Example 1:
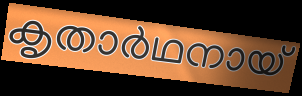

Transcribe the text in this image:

കൃതാർഥനായ്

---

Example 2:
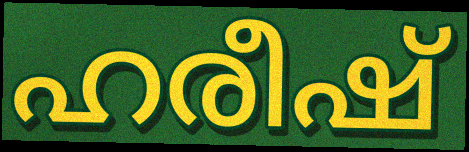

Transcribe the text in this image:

ഹരീഷ്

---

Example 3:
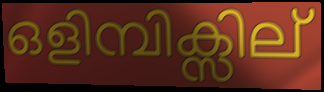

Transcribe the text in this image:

ഒളിമ്പിക്സില്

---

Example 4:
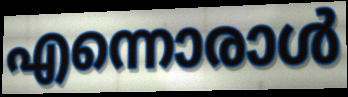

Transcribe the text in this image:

എന്നൊരാൾ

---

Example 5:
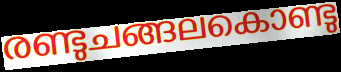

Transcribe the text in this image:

രണ്ടുചങ്ങലകൊണ്ടു